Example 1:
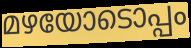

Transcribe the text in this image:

മഴയോടൊപ്പം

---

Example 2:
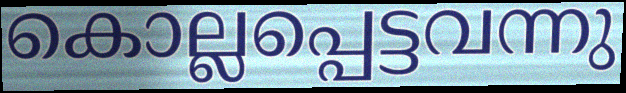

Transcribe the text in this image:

കൊല്ലപ്പെട്ടവന്നു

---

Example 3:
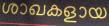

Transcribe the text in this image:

ശാഖകളായ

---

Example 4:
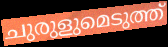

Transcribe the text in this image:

ചുരുളുമെടുത്ത്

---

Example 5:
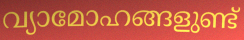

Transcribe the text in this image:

വ്യാമോഹങ്ങളുണ്ട്